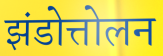
झंडोत्तोलन